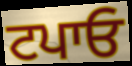
ਟਪਾਓ